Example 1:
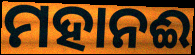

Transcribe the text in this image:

ମହାନଈ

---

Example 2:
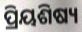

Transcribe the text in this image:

ପ୍ରିୟଶିଷ୍ୟ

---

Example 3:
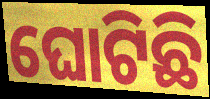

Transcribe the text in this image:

ଘୋଟିଛି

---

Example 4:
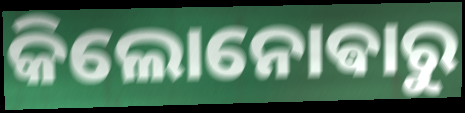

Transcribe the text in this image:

କିଲୋନୋଵାରୁ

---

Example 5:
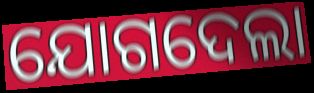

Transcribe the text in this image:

ଯୋଗଦେଲା